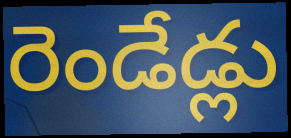
రెండేడ్లు